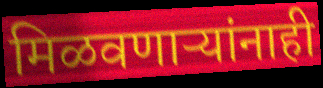
मिळवणाऱ्यांनाही